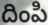
దింపి